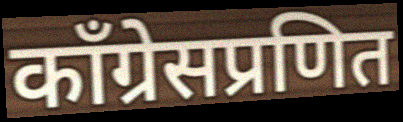
काँग्रेसप्रणित